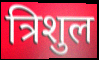
त्रिशुल